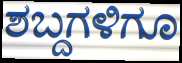
ಶಬ್ದಗಳಿಗೂ